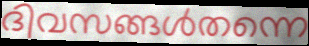
ദിവസങ്ങൾതന്നെ